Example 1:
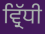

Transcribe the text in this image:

ਵ੍ਰਿੱਧੀ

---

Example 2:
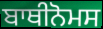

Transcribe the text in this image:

ਬਾਥੀਨੋਮਸ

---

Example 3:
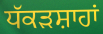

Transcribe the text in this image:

ਧੱਕੜਸ਼ਾਹਾਂ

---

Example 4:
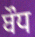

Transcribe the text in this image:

ਬੌਧ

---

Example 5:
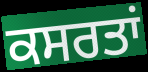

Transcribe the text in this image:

ਕਸਰਤਾਂ